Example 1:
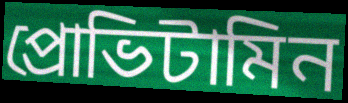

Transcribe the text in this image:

প্রোভিটামিন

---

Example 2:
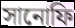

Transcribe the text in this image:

সানোফি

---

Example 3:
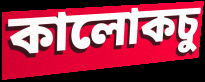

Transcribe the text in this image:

কালোকচু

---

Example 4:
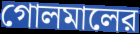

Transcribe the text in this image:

গোলমালের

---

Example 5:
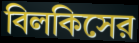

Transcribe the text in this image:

বিলকিসের